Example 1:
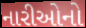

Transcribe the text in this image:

નારીઓનો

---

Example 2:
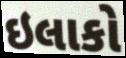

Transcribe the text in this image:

ઇલાકો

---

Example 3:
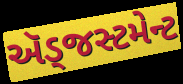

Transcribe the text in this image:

ઍડ્જસ્ટમેન્ટ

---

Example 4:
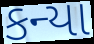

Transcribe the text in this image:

કન્યા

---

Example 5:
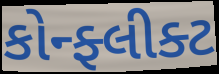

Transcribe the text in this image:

કોન્ફ્લીક્ટ